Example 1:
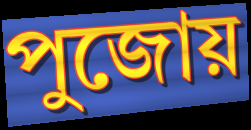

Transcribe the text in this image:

পুজোয়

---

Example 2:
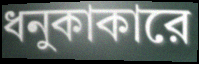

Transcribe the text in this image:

ধনুকাকারে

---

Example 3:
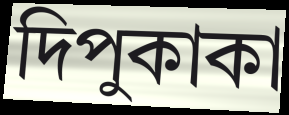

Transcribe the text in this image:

দিপুকাকা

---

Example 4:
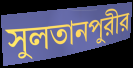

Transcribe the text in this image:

সুলতানপুরীর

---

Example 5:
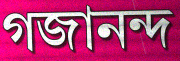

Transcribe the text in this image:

গজানন্দ